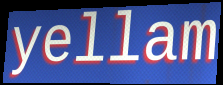
yellam